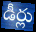
డీర్లు